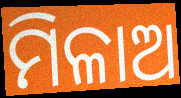
ମିଳାଅ